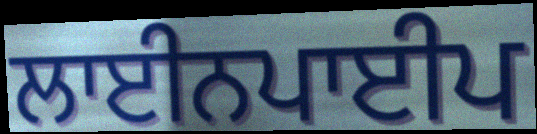
ਲਾਈਨਪਾਈਪ